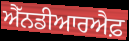
ਐੱਨਡੀਆਰਐਫ਼